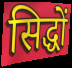
सिद्धों